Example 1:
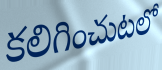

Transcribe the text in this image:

కలిగించుటలో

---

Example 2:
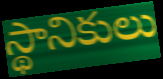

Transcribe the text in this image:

స్థానికులు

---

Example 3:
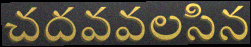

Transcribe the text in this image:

చదవవలసిన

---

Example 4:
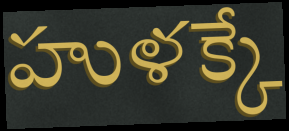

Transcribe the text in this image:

హుళక్కే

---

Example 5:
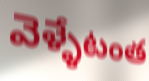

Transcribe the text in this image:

వెళ్ళేటంత